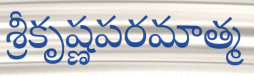
శ్రీకృష్ణపరమాత్మ